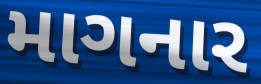
માગનાર